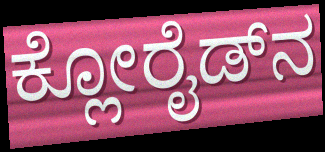
ಕ್ಲೋರೈಡ್‍ನ